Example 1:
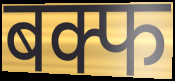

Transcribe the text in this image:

बक्फ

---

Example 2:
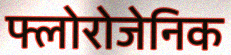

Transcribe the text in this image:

फ्लोरोजेनिक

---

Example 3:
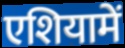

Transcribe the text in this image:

एशियामें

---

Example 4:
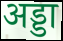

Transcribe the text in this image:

अड्डा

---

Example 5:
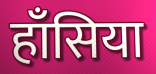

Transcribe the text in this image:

हाँसिया